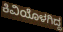
ಕಿವಿಯೊಳಗಿದ್ದ